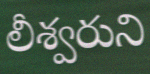
లీశ్వరుని